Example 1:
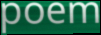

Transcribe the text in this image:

poem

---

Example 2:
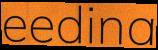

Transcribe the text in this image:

eedina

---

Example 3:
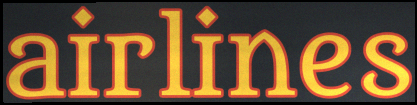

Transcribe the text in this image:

airlines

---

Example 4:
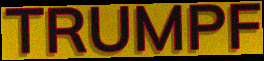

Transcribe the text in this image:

TRUMPF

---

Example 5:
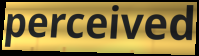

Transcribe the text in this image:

perceived